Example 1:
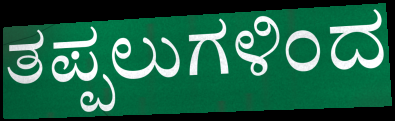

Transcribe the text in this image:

ತಪ್ಪಲುಗಳಿಂದ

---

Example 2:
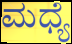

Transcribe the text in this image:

ಮಧ್ಯೆ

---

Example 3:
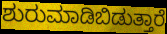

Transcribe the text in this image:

ಶುರುಮಾಡಿಬಿಡುತ್ತಾರೆ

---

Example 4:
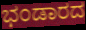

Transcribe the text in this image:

ಭಂಡಾರದ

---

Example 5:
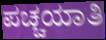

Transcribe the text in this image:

ಪಚ್ಚಯಾತಿ